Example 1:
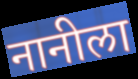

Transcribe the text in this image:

नानीला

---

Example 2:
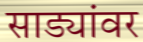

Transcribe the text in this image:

साड्यांवर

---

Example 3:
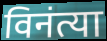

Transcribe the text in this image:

विनंत्या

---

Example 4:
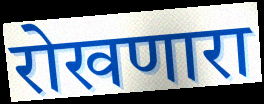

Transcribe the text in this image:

रोखणारा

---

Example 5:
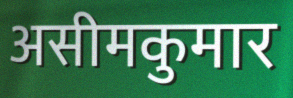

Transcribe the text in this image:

असीमकुमार